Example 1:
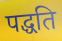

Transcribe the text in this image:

पद्धति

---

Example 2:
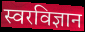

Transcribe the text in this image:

स्वरविज्ञान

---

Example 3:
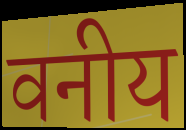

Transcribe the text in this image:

वनीय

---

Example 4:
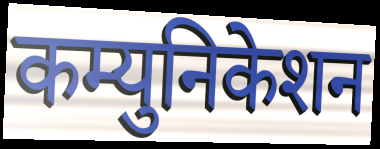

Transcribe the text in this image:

कम्युनिकेशन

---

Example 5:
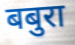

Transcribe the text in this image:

बबुरा